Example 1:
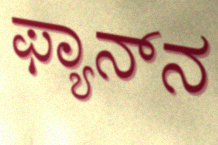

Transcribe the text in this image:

ಫ್ಯಾನ್‌ನ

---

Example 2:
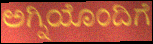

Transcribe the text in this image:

ಅಗ್ನಿಯೊಂದಿಗೆ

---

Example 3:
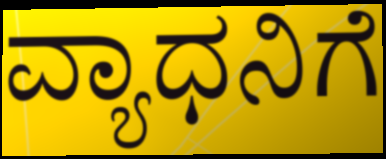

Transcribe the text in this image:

ವ್ಯಾಧನಿಗೆ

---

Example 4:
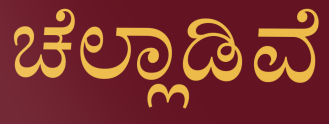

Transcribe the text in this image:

ಚೆಲ್ಲಾಡಿವೆ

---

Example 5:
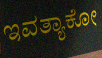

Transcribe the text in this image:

ಇವತ್ಯಾಕೋ